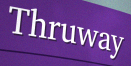
Thruway